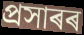
প্ৰসাৰৰ